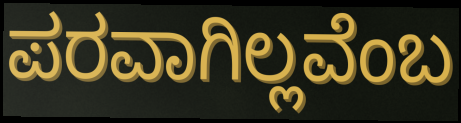
ಪರವಾಗಿಲ್ಲವೆಂಬ